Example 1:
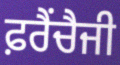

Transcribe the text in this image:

ਫ਼ਰੈਂਚੈਜੀ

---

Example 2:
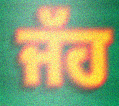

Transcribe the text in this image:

ਜੱਹ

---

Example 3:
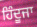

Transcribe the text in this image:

ਹਿੰਦੂਜਾ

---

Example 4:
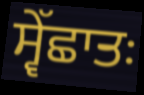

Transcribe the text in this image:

ਸ੍ਵੇੱਛਾਤਃ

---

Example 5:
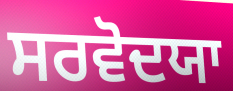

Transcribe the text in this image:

ਸਰਵੋਦਯਾ